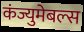
कंज्युमेबल्स